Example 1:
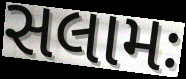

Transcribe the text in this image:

સલામઃ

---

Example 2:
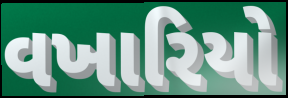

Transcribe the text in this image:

વખારિયો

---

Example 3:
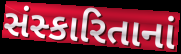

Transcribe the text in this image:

સંસ્કારિતાનાં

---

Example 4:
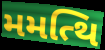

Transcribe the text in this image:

મમત્થિ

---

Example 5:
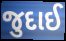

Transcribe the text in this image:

જુદાઈ